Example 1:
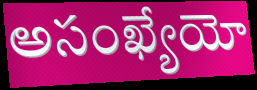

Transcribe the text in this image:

అసంఖ్యేయో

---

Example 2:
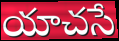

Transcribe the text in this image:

యాచసే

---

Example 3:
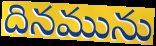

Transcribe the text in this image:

దినమును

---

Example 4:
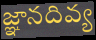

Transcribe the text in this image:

జ్ఞానదివ్య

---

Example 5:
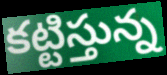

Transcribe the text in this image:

కట్టిస్తున్న